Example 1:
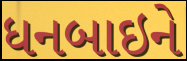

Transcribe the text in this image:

ધનબાઇને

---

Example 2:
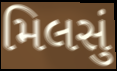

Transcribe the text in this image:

મિલસું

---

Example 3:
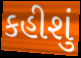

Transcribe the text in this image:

કહીશું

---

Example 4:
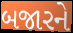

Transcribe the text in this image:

બજારને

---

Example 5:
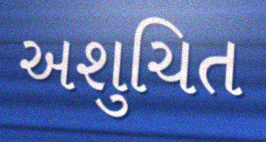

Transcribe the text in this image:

અશુચિત